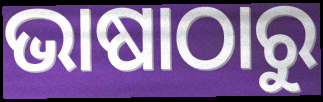
ଭାଷାଠାରୁ